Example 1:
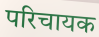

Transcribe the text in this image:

परिचायक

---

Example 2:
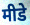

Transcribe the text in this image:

मीडे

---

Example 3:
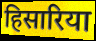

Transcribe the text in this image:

हिसारिया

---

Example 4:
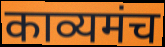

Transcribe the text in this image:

काव्यमंच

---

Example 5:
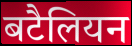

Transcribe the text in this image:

बटैलियन